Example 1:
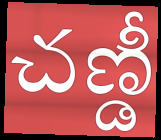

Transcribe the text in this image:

చణ్డీ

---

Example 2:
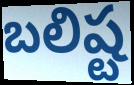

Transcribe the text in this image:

బలిష్ట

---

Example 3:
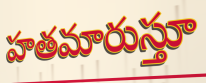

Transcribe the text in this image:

హతమారుస్తూ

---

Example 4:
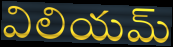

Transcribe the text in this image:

విలియమ్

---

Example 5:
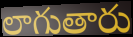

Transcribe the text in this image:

లాగుతారు